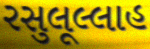
રસુલૂલ્લાહ